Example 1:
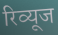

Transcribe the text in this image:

रिव्यूज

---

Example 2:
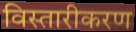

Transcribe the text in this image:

विस्तारीकरण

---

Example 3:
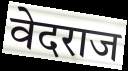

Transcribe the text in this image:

वेदराज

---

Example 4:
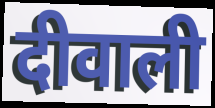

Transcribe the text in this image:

दीवाली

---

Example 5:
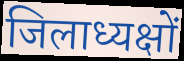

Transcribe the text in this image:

जिलाध्यक्षों